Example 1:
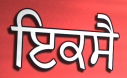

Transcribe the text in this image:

ਇਕਸੈ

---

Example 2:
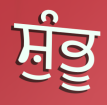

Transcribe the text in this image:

ਸ਼ੁੰਭੂ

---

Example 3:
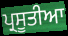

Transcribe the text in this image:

ਪ੍ਰਸੂਤੀਆ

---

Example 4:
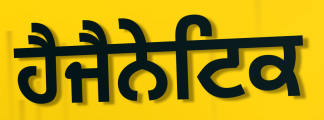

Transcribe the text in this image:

ਹੈਜੈਨੇਟਿਕ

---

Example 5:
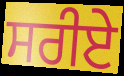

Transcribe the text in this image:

ਸਰੀਏ